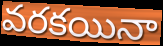
వరకయినా